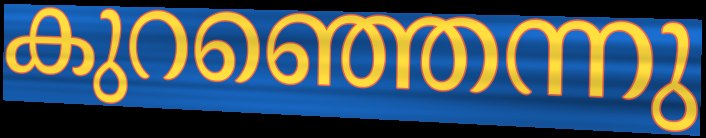
കുറഞ്ഞെന്നു